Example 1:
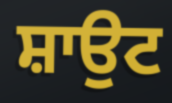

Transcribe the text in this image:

ਸ਼ਾਉਟ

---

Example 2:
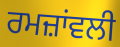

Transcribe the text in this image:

ਰਮਜ਼ਾਂਵਲੀ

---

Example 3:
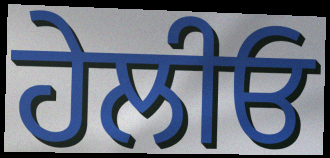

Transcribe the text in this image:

ਹੇਲੀਓ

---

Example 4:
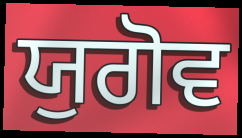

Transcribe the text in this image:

ਯੁਗੋਵ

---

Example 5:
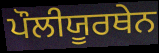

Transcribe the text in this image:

ਪੌਲੀਯੂਰਥੇਨ